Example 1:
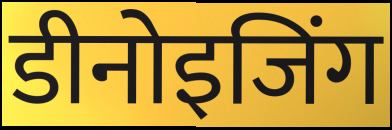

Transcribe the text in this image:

डीनोइजिंग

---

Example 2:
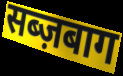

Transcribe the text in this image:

सब्ज़बाग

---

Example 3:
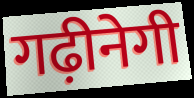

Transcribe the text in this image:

गढ़ीनेगी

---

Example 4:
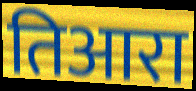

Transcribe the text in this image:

तिआरा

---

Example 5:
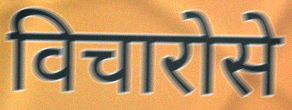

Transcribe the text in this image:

विचारोसे